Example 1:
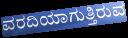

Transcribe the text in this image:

ವರದಿಯಾಗುತ್ತಿರುವ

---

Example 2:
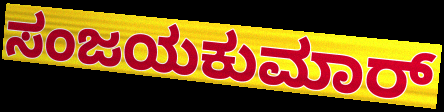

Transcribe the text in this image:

ಸಂಜಯಕುಮಾರ್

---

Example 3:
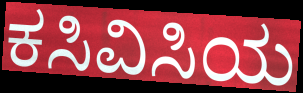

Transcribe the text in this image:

ಕಸಿವಿಸಿಯ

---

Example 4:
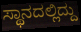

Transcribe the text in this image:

ಸ್ಥಾನದಲ್ಲಿದ್ದು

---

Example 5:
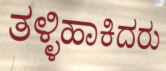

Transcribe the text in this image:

ತಳ್ಳಿಹಾಕಿದರು